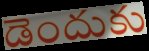
డెందుకు